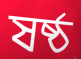
ষষ্ঠ